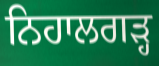
ਨਿਹਾਲਗੜ੍ਹ